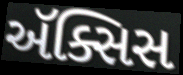
ઍક્સિસ